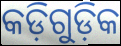
କଡ଼ିଗୁଡ଼ିକ